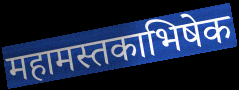
महामस्तकाभिषेक